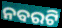
ନବରଟି